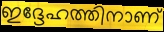
ഇദ്ദേഹത്തിനാണ്